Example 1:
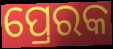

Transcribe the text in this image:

ପ୍ରେରକ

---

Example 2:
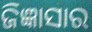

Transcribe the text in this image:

ଜିଜ୍ଞାସାର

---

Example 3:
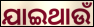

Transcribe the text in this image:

ଯାଇଥାଉଁ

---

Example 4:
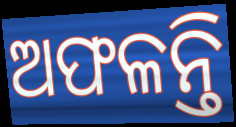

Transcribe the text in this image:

ଅଫଳନ୍ତି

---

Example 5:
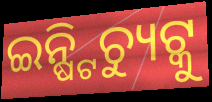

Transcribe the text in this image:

ଇନ୍ଷ୍ଟିଚ୍ୟୁଟ୍କୁ